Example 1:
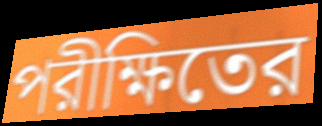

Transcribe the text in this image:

পরীক্ষিতের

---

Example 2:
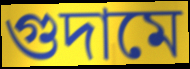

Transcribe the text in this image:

গুদামে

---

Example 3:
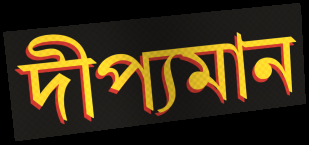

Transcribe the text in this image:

দীপ্যমান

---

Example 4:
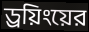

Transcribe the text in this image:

ড্রয়িংয়ের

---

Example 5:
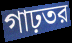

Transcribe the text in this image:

গাঢ়তর